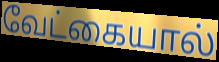
வேட்கையால்